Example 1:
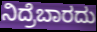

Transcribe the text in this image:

ನಿದ್ರೆಬಾರದು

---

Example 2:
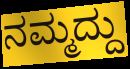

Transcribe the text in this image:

ನಮ್ಮದ್ದು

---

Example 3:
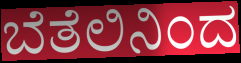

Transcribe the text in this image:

ಬೆತೆಲಿನಿಂದ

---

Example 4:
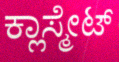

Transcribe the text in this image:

ಕ್ಲಾಸ್ಮೇಟ್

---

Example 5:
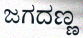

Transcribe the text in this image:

ಜಗದಣ್ಣ